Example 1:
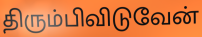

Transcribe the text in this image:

திரும்பிவிடுவேன்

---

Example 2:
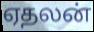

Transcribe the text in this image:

ஏதலன்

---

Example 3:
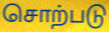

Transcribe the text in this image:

சொற்படு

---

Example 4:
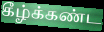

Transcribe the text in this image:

கீழ்க்கண்ட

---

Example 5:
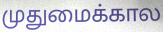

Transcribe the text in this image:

முதுமைக்கால